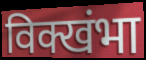
विक्खंभा